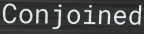
Conjoined